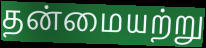
தன்மையற்று